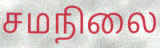
சமநிலை